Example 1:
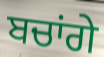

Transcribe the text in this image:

ਬਚਾਂਗੇ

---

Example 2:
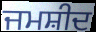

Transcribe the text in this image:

ਜਮਸ਼ੀਦ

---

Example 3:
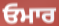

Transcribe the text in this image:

ਓਮਾਰ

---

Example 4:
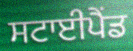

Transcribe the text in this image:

ਸਟਾਈਪੈਂਡ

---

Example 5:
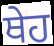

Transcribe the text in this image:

ਥੇਹ